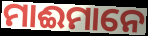
ମାଈମାନେ